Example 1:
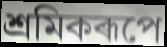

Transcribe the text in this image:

শ্ৰমিকৰূপে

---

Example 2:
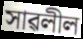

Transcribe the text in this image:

সাৱলীল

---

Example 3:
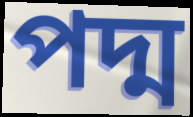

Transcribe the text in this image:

পদ্ম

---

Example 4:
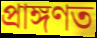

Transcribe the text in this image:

প্ৰাঙ্গণত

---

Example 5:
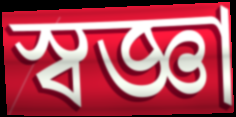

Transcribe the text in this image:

স্বজ্ঞা